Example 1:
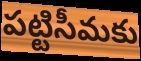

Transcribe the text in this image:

పట్టిసీమకు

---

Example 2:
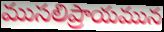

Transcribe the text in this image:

ముసలిప్రాయమున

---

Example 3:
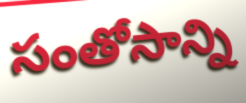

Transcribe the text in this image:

సంతోసాన్ని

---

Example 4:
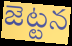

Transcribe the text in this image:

జెట్టన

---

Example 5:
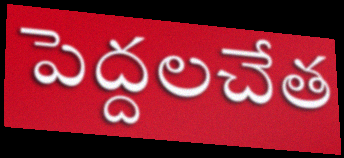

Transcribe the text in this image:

పెద్దలచేత